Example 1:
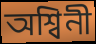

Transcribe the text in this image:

অশ্বিনী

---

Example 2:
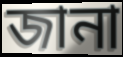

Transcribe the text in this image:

জানা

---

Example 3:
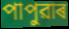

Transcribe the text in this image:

পাপুৱাৰ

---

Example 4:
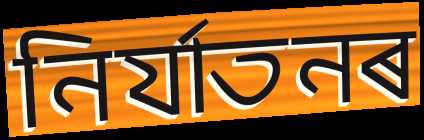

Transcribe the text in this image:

নিৰ্যাতনৰ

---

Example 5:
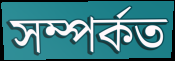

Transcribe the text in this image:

সম্পৰ্কত